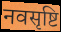
नवसृष्टि